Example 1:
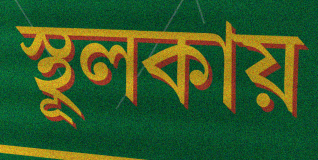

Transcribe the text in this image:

স্থূলকায়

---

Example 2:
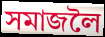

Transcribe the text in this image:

সমাজলৈ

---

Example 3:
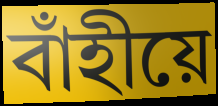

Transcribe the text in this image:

বাঁহীয়ে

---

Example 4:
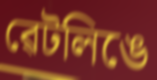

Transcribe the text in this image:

ৱেটলিঙে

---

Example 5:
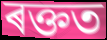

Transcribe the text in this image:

ৰক্তত